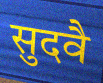
सुदवै